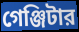
গেঞ্জিটার